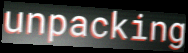
unpacking